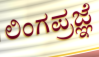
ಲಿಂಗಪ್ರಜ್ಞೆ